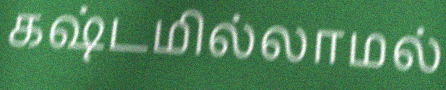
கஷ்டமில்லாமல்